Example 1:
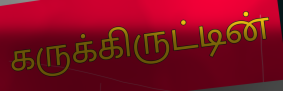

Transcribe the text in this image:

கருக்கிருட்டின்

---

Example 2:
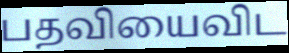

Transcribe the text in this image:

பதவியைவிட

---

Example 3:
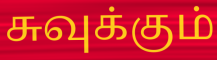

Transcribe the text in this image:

சுவுக்கும்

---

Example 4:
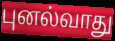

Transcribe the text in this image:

புனல்வாது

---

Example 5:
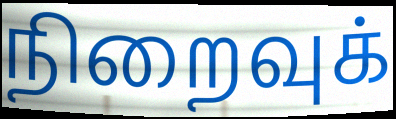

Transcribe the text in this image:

நிறைவுக்